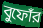
বুফোঁর